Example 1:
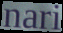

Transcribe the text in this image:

nari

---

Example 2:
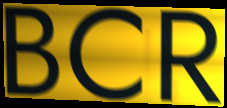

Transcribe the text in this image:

BCR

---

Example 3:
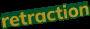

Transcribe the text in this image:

retraction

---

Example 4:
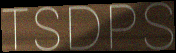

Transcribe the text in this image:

TSDPS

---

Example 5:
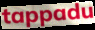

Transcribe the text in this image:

tappadu